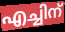
എച്ചിന്